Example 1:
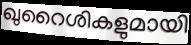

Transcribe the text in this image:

ഖുറൈശികളുമായി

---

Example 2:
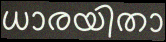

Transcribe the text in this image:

ധാരയിതാ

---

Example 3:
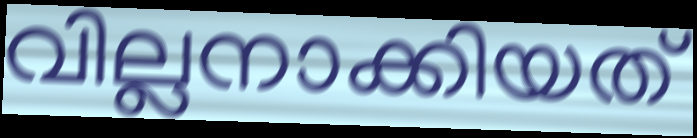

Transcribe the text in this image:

വില്ലനാക്കിയത്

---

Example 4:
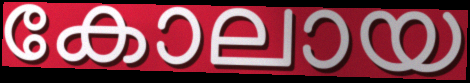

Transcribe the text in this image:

കോലായ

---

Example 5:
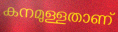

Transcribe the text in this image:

കനമുള്ളതാണ്